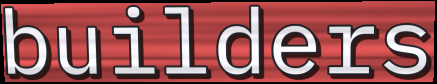
builders